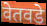
वेतवडे